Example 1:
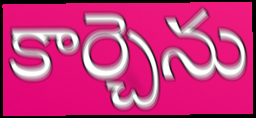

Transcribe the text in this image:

కార్చెను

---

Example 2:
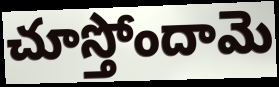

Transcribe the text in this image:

చూస్తోందామె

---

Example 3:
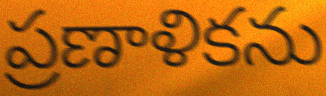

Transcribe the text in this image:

ప్రణాళికను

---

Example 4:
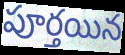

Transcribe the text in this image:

పూర్తయిన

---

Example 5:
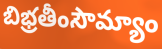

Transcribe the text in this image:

బిభ్రతీంసౌమ్యాం